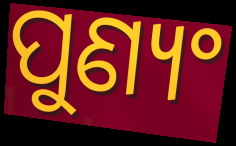
ପୁଣ୍ୟଂ